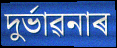
দুৰ্ভাৱনাৰ